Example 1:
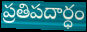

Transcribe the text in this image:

ప్రతిపదార్ధం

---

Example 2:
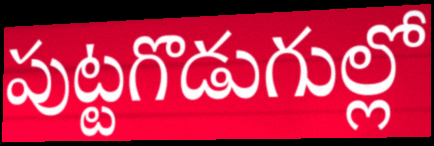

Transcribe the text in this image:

పుట్టగొడుగుల్లో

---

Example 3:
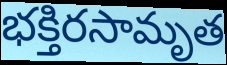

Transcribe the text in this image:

భక్తిరసామృత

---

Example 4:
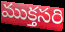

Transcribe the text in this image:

ముక్తసరి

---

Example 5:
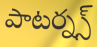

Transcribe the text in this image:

పాటర్న్స్